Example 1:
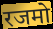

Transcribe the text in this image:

रजमो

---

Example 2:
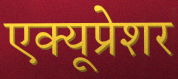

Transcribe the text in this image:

एक्यूप्रेशर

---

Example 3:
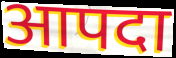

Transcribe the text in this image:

आपदा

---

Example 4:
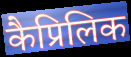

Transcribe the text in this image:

कैप्रिलिक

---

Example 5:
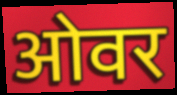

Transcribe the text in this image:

ओवर